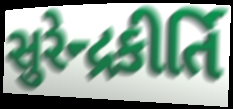
સુરેન્દ્રકીર્તિ